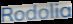
Rodolia